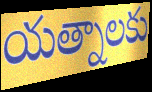
యత్నాలకు